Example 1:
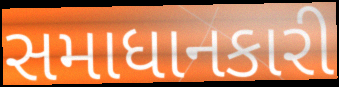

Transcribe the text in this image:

સમાધાનકારી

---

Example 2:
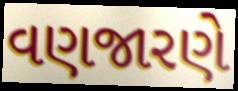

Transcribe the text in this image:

વણજારણે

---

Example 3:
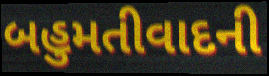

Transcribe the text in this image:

બહુમતીવાદની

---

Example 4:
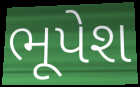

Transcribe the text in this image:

ભૂપેશ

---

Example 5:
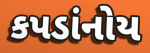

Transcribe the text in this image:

કપડાંનોય